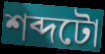
শব্দটো